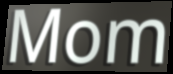
Mom